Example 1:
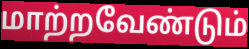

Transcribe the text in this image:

மாற்றவேண்டும்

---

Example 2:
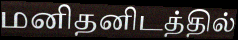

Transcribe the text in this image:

மனிதனிடத்தில்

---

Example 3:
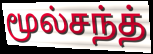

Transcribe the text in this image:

மூல்சந்த்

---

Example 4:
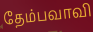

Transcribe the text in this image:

தேம்பவாவி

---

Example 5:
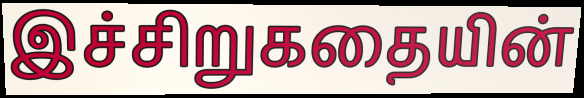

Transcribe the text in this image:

இச்சிறுகதையின்